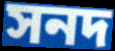
সনদ